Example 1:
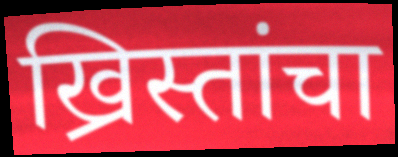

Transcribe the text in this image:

ख्रिस्तांचा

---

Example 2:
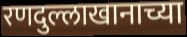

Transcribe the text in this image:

रणदुल्लाखानाच्या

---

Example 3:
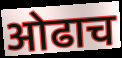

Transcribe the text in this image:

ओढाच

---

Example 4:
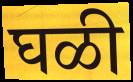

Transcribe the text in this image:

घळी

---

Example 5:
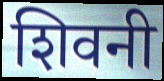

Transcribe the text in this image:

शिवनी